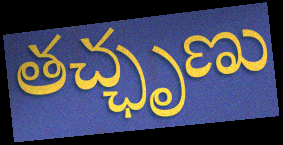
తచ్ఛృణు